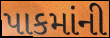
પાકમાંની